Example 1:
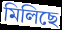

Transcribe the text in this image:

মিলিছে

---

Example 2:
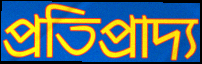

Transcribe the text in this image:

প্ৰতিপ্ৰাদ্য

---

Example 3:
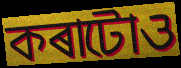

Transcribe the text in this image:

কৰাটোও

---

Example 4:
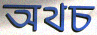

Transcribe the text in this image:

অথচ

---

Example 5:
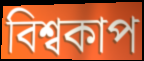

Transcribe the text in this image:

বিশ্বকাপ